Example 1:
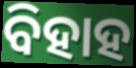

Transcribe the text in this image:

ବିହାହ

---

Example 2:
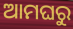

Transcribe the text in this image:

ଆମଘରୁ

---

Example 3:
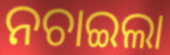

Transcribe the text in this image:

ନଚାଇଲା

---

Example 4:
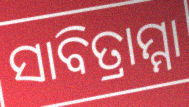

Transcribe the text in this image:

ସାବିତ୍ରାମ୍ମା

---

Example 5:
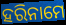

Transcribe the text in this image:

ହରିନାମେ